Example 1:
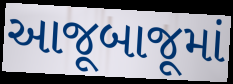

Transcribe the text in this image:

આજૂબાજૂમાં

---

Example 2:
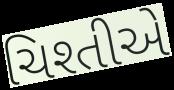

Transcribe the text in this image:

ચિશ્તીએ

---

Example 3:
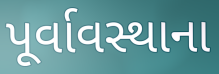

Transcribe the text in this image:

પૂર્વાવસ્થાના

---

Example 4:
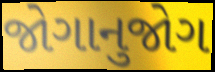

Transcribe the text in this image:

જોગાનુજોગ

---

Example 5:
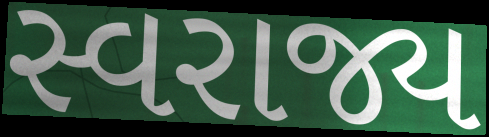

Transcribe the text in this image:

સ્વરાજ્ય